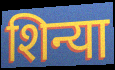
शिन्या